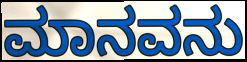
ಮಾನವನು